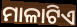
ମାଳାଟିଏ